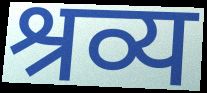
श्रव्य